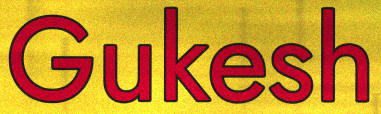
Gukesh